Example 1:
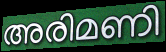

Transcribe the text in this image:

അരിമണി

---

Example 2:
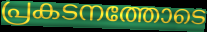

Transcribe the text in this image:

പ്രകടനത്തോടെ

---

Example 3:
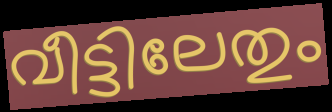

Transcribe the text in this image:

വീട്ടിലേതും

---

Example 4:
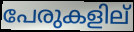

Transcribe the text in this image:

പേരുകളില്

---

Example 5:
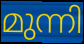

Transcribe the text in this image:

മുന്നി